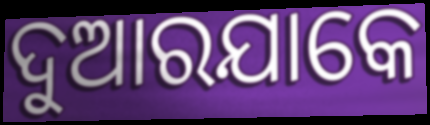
ଦୁଆରଯାକେ